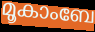
മൂകാംബേ